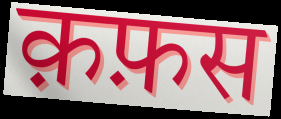
क़फ़स